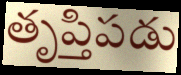
తృప్తిపడు